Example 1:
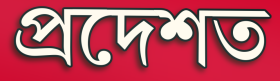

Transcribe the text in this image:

প্ৰদেশত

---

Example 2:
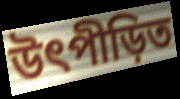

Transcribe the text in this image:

উৎপীড়িত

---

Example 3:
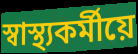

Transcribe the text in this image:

স্বাস্থ্যকৰ্মীয়ে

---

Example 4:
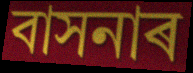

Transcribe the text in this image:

বাসনাৰ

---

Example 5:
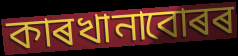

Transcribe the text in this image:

কাৰখানাবোৰৰ